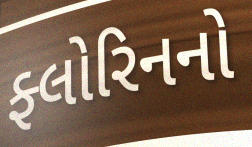
ફ્લોરિનનો